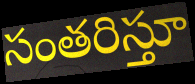
సంతరిస్తూ